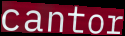
cantor